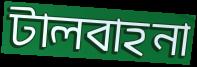
টালবাহনা